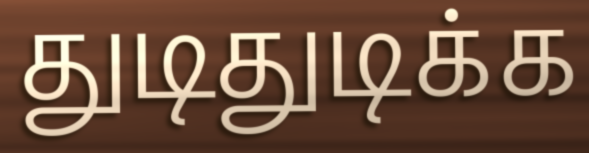
துடிதுடிக்க